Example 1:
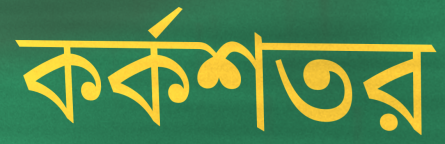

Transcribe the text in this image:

কর্কশতর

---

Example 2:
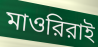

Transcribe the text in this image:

মাওরিরাই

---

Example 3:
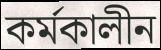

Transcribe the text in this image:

কর্মকালীন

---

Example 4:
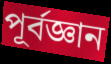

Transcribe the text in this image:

পূর্বজ্ঞান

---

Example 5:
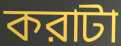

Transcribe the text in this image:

করাটা